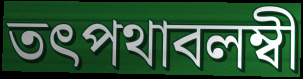
তৎপথাবলম্বী